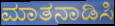
ಮಾತನಾಡಿಸಿ